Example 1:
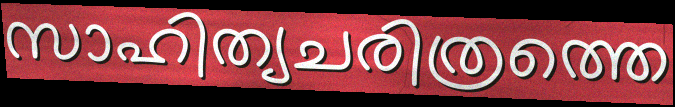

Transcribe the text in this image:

സാഹിത്യചരിത്രത്തെ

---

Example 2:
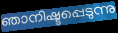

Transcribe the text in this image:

ഞാനിഷ്ടപ്പെടുന്നു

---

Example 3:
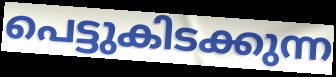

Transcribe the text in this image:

പെട്ടുകിടക്കുന്ന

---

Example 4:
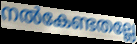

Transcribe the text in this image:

നൽകേണ്ടതല്ലേ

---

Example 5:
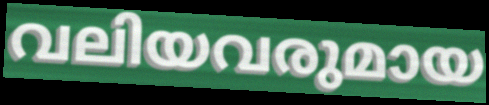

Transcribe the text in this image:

വലിയവരുമായ